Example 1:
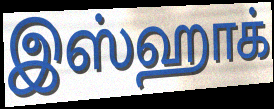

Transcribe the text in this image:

இஸ்ஹாக்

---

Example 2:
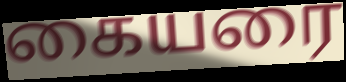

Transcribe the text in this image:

கையரை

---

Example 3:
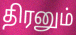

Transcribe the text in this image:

திரனும்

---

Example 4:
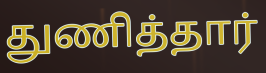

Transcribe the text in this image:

துணித்தார்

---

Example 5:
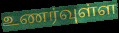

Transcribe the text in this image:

உணர்வுள்ள